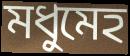
মধুমেহ